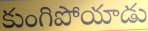
కుంగిపోయాడు